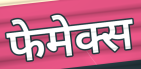
फेमेक्स